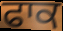
ਫਾਕ